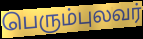
பெரும்புலவர்